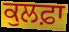
ਕੁਲਫ਼ਾ